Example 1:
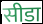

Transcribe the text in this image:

सीडा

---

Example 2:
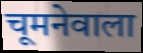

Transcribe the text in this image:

चूमनेवाला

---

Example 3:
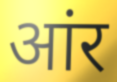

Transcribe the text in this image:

आंर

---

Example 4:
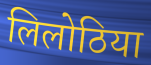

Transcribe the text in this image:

लिलोठिया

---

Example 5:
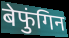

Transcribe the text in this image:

बेफुंगिन